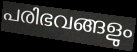
പരിഭവങ്ങളും